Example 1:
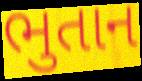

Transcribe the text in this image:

ભુતાન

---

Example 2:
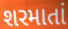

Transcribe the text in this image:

શરમાતાં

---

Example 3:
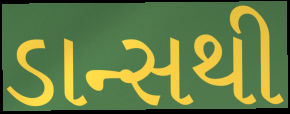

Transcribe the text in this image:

ડાન્સથી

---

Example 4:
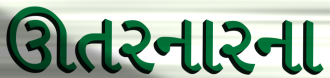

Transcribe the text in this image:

ઊતરનારના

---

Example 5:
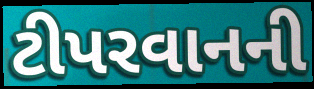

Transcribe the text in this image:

ટીપરવાનની